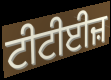
ਟੀਟੀਈਜ਼